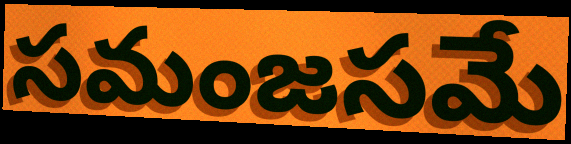
సమంజసమే